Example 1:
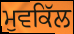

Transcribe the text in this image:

ਮੁਵਕਿੱਲ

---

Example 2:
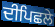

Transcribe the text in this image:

ਦੀਪਿਛਲੇ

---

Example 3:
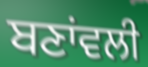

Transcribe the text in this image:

ਬਣਾਂਵਲੀ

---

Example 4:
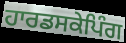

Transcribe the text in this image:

ਹਾਰਡਸਕੇਪਿੰਗ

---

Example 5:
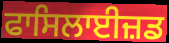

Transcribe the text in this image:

ਫਾਸਿਲਾਈਜ਼ਡ